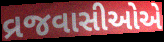
વ્રજવાસીઓએ